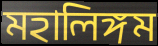
মহালিঙ্গম